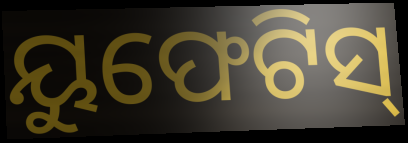
ୟୁଫେଟିସ୍